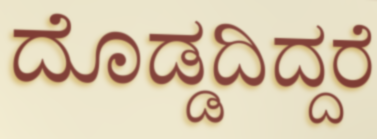
ದೊಡ್ಡದಿದ್ದರೆ